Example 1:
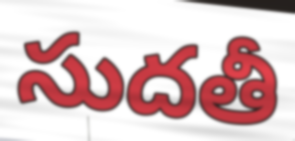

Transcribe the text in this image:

సుదతీ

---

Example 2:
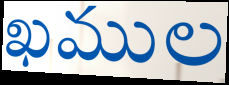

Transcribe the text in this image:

ఖముల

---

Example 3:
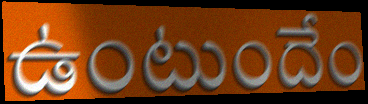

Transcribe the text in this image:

ఉంటుందేం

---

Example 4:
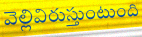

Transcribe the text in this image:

వెల్లివిరుస్తుంటుంది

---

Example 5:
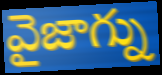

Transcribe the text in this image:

వైజాగ్ను